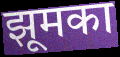
झूमका